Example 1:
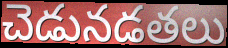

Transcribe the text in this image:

చెడునడతలు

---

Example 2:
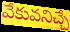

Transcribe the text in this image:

వేకువనిచ్చే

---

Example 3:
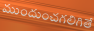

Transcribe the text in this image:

ముందుంచగలిగితే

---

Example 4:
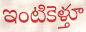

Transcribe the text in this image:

ఇంటికెళ్తూ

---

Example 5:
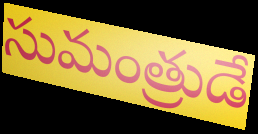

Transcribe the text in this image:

సుమంత్రుడే